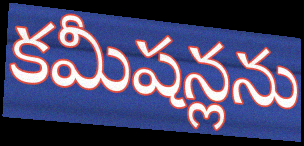
కమీషన్లను